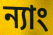
ন্যাং